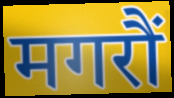
मगरौं